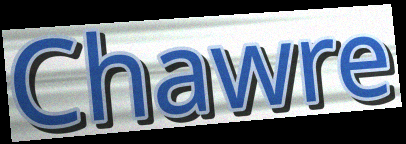
Chawre